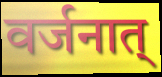
वर्जनात्